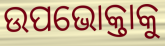
ଉପଭୋକ୍ତାକୁ